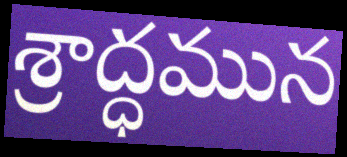
శ్రాద్ధమున